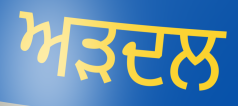
ਅੜਦਲ